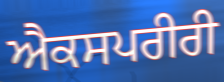
ਐਕਸਪਰੀਰੀ